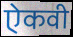
ऐकवी